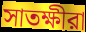
সাতক্ষীরা